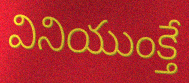
వినియుంక్తే